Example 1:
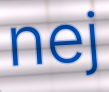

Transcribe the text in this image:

nej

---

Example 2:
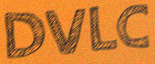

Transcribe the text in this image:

DVLC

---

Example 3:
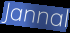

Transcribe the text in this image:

Jannal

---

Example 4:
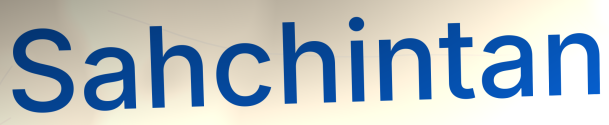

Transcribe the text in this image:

Sahchintan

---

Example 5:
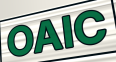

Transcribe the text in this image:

OAIC